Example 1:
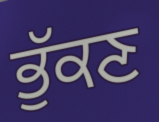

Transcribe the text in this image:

ਭੁੱਕਣ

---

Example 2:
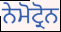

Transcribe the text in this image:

ਨੇਮੋਟ੍ਰੋਨ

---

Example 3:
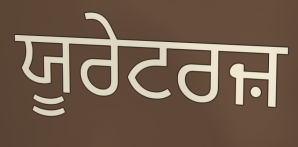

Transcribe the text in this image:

ਯੂਰੇਟਰਜ਼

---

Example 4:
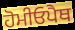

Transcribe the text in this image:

ਹੋਮੀਓਪੈਥ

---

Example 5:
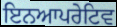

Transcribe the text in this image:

ਇਨਆਪਰੇਟਿਵ